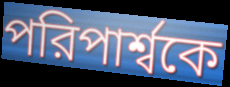
পরিপার্শ্বকে